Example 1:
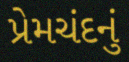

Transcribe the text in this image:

પ્રેમચંદનું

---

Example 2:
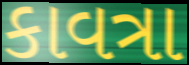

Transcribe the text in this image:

કાવત્રા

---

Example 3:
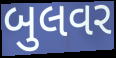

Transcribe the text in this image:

બુલવર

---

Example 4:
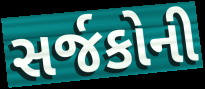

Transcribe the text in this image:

સર્જકોની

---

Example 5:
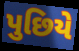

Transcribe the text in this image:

પુછિયે